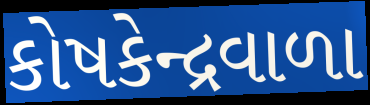
કોષકેન્દ્રવાળા